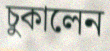
চুকালেন